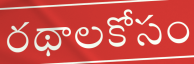
రథాలకోసం